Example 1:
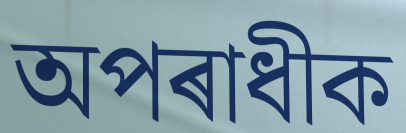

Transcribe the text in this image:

অপৰাধীক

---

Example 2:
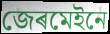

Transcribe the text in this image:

জেৰমেইনে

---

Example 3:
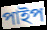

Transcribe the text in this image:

পাইপ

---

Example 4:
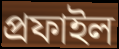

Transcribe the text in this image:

প্ৰফাইল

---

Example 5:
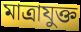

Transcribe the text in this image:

মাত্ৰাযুক্ত